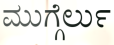
ಮುಗ್ಗೆರ್ಲು